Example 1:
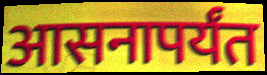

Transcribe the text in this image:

आसनापर्यंत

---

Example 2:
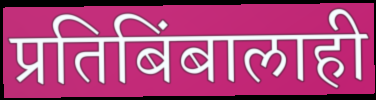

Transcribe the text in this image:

प्रतिबिंबालाही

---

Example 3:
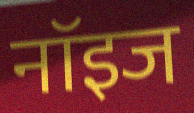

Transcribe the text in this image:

नॉइज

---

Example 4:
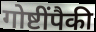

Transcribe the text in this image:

गोष्टींपैकी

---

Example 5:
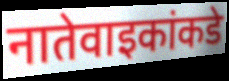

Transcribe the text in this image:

नातेवाइकांकडे